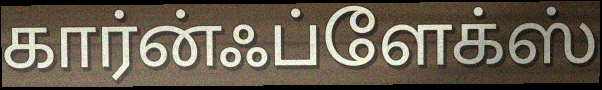
கார்ன்ஃப்ளேக்ஸ்